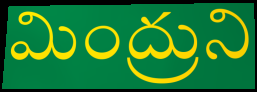
మింద్రుని